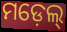
ମଡ଼େଲ୍